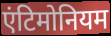
एंटिमोनियम